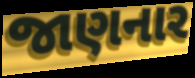
જાણનાર